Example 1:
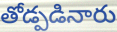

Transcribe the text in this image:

తోడ్పడినారు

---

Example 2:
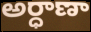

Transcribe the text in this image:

అర్ధాణా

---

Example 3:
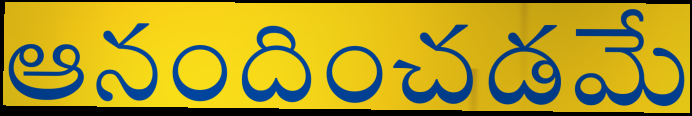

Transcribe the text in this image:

ఆనందించడమే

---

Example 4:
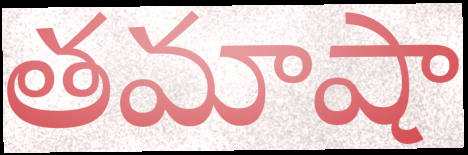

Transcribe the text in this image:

తమాషా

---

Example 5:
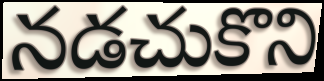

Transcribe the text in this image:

నడచుకొని